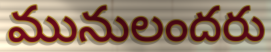
మునులందరు